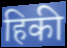
हिकी